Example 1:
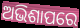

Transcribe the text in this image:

ଅଭିଶାପରେ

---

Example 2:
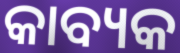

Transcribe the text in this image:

କାବ୍ୟକ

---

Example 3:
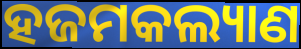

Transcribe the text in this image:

ହଜମକଲ୍ୟାଣ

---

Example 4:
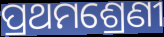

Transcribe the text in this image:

ପ୍ରଥମଶ୍ରେଣୀ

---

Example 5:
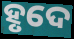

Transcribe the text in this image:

ହୃଦେ